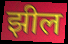
झील